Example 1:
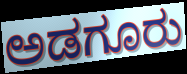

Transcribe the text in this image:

ಅಡಗೂರು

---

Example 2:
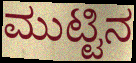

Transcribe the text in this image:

ಮುಟ್ಟಿನ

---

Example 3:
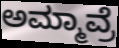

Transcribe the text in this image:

ಅಮ್ಮಾವ್ರೆ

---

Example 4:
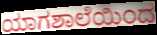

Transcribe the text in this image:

ಯಾಗಶಾಲೆಯಿಂದ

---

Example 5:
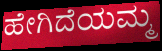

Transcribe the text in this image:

ಹೇಗಿದೆಯಮ್ಮ